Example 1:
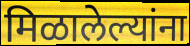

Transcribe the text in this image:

मिळालेल्यांना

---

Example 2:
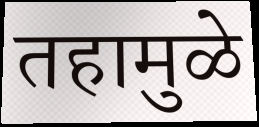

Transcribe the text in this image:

तहामुळे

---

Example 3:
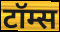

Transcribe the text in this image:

टॉम्स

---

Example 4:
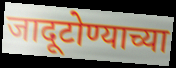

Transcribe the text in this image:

जादूटोण्याच्या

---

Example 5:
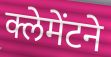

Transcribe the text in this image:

क्लेमेंटने